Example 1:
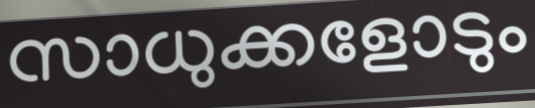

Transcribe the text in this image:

സാധുക്കളോടും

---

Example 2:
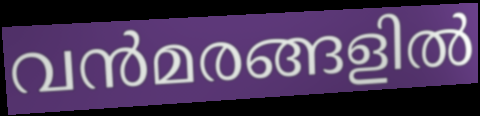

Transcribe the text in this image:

വൻമരങ്ങളിൽ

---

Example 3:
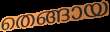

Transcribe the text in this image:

തെങ്ങായ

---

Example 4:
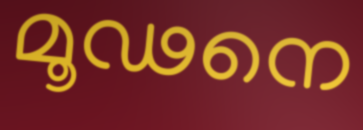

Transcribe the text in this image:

മൂഢനെ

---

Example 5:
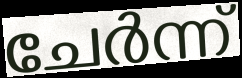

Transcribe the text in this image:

ചേർന്ന്